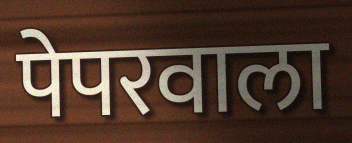
पेपरवाला